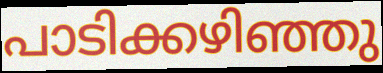
പാടിക്കഴിഞ്ഞു